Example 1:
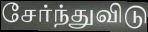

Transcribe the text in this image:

சேர்ந்துவிடு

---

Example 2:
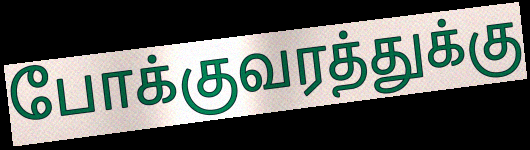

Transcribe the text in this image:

போக்குவரத்துக்கு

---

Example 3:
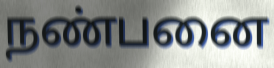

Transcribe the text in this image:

நண்பனை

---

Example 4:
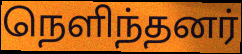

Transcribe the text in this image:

நெளிந்தனர்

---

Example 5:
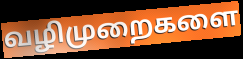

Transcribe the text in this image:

வழிமுறைகளை